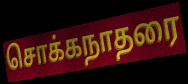
சொக்கநாதரை